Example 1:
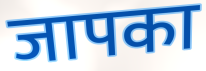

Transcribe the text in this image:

जापका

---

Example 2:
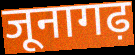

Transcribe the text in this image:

जूनागढ़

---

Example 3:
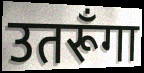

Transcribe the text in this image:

उतरूँगा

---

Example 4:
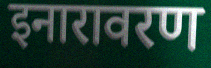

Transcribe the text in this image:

इनारावरण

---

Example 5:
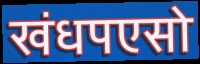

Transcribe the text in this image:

खंधपएसो